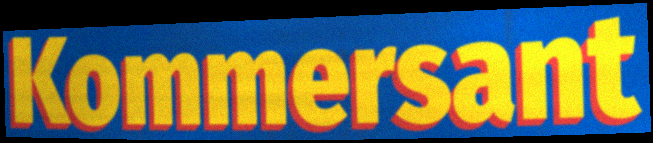
Kommersant